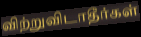
விற்றுவிடாதீர்கள்